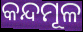
କନ୍ଦମୂଳ